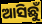
ଆସିଛୁଁ